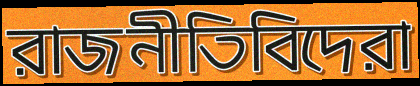
রাজনীতিবিদেরা